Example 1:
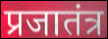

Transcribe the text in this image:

प्रजातंत्र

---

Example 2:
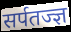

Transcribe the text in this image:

सर्पतज्ज्ञ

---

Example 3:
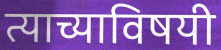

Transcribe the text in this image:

त्याच्याविषयी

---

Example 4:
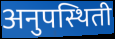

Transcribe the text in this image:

अनुपस्थिती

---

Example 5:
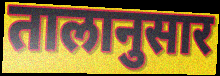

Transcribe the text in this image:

तालानुसार